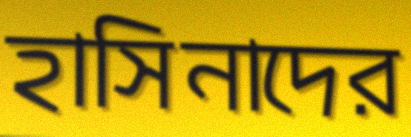
হাসিনাদের